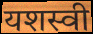
यशस्‍वी